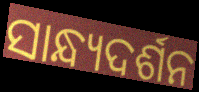
ସାନ୍ଧ୍ୟଦର୍ଶନ